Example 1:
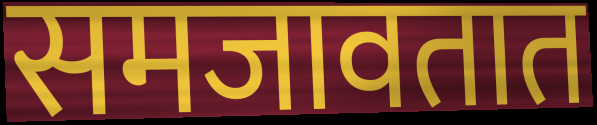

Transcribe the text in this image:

समजावतात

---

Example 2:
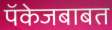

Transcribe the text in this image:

पॅकेजबाबत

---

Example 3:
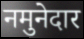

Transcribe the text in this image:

नमुनेदार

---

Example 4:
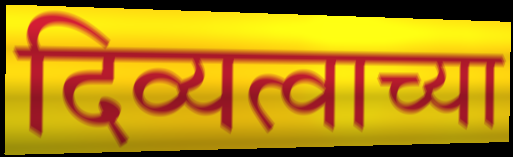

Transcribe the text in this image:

दिव्यत्वाच्या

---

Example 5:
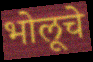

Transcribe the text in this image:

भोलूचे